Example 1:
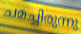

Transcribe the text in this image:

ചമച്ചിരുന്നു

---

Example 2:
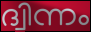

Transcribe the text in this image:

ദ്വിന്നം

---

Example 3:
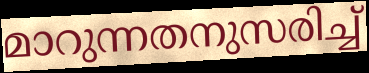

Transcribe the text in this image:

മാറുന്നതനുസരിച്ച്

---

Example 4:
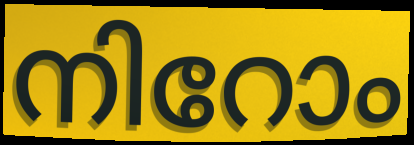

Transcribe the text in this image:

നിറോം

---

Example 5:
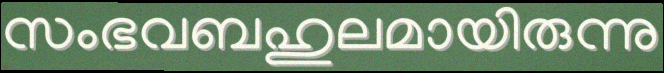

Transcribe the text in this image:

സംഭവബഹുലമായിരുന്നു